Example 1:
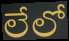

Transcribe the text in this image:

లేలో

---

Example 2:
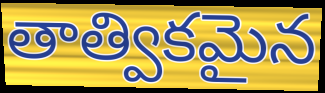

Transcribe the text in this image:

తాత్వికమైన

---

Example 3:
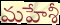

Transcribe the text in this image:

మహేశీ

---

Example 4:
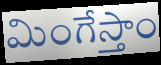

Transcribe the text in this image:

మింగేస్తాం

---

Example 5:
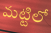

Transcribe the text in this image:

మట్టిలో